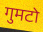
गुमटो